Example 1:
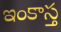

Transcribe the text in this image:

ఇంకాస్త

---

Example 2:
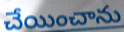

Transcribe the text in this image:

చేయించాను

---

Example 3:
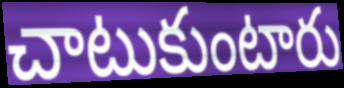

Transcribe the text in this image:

చాటుకుంటారు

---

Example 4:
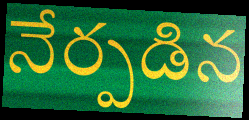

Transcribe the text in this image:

నేర్పడిన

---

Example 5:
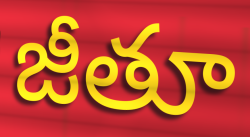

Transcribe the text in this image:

జీతూ